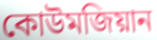
কোউমজিয়ান